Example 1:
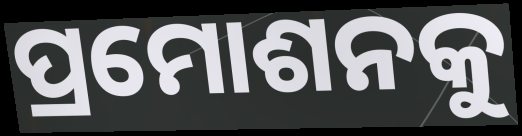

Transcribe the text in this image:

ପ୍ରମୋଶନକୁ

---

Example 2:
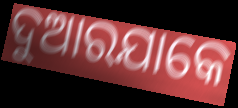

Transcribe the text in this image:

ଦୁଆରଯାକେ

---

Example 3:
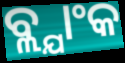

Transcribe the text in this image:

ବ୍ଲ୍ଯାଂକ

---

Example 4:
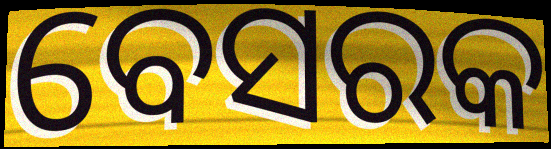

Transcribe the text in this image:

ବେସରକ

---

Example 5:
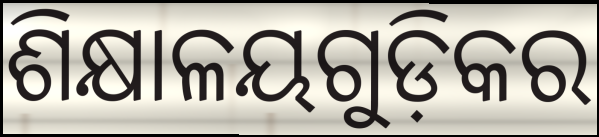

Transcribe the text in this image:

ଶିକ୍ଷାଳୟଗୁଡ଼ିକର